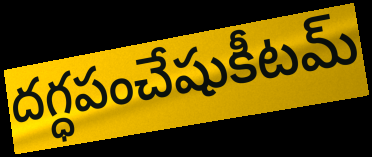
దగ్ధపంచేషుకీటమ్